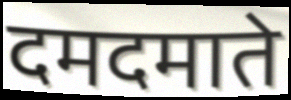
दमदमाते